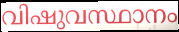
വിഷുവസ്ഥാനം